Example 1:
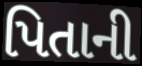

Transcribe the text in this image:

પિતાની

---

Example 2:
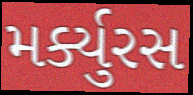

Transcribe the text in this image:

મર્ક્યુરસ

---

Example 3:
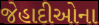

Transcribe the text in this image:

જેહાદીઓના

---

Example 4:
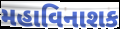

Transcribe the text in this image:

મહાવિનાશક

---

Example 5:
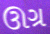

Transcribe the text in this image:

ઊગ્ર